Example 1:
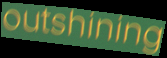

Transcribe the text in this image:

outshining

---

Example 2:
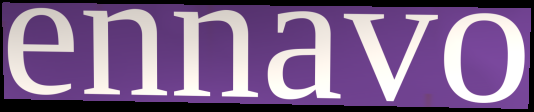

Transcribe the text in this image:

ennavo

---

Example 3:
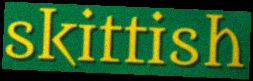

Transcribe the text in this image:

skittish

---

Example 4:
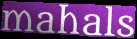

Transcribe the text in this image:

mahals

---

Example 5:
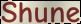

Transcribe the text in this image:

Shune